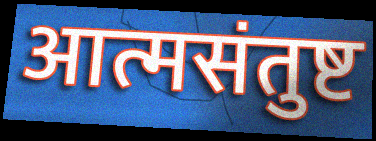
आत्मसंतुष्ट